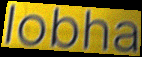
lobha